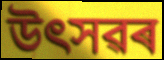
উৎসৱৰ